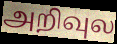
அறிவுல